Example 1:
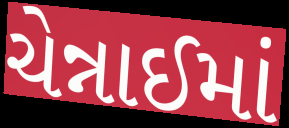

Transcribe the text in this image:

ચેન્નાઈમાં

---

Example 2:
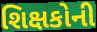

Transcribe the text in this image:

શિક્ષકોની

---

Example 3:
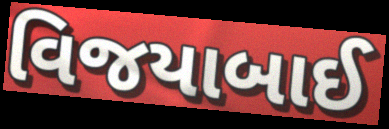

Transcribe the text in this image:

વિજયાબાઈ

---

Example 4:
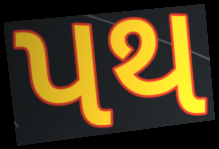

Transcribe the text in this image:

પથ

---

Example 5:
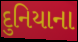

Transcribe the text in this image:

દુનિયાના